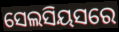
ସେଲସିୟସରେ